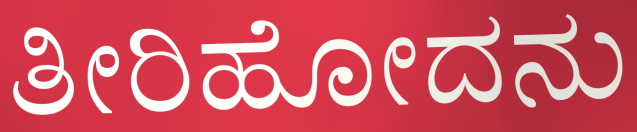
ತೀರಿಹೋದನು